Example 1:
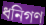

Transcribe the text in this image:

ধনিগণ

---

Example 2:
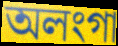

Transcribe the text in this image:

অলংগা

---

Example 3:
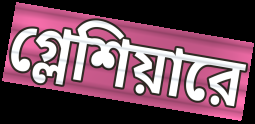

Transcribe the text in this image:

গ্লেশিয়ারে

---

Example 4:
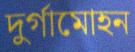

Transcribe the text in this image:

দুর্গামোহন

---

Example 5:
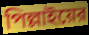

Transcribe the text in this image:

পিল্লাইয়ের